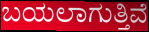
ಬಯಲಾಗುತ್ತಿವೆ